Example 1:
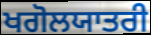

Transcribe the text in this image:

ਖਗੋਲਯਾਤਰੀ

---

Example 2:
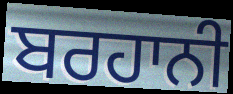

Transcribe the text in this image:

ਬਰਹਾਨੀ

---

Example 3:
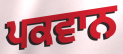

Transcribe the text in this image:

ਪਕਵਾਨ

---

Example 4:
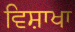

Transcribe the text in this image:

ਵਿਸ਼ਾਖਾ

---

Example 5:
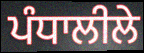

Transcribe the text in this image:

ਪੰਧਾਲੀਲੇ